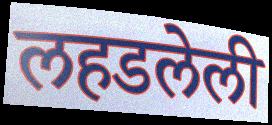
लहडलेली